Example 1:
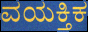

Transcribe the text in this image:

ವಯಕ್ತಿಕ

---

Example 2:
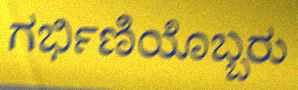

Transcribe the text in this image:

ಗರ್ಭಿಣಿಯೊಬ್ಬರು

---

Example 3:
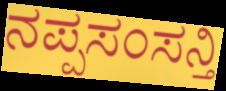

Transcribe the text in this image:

ನಪ್ಪಸಂಸನ್ತಿ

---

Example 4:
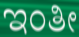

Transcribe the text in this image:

ಇಂತೀ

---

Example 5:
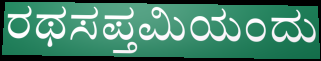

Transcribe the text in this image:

ರಥಸಪ್ತಮಿಯಂದು